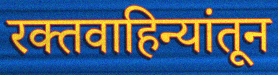
रक्तवाहिन्यांतून